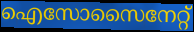
ഐസോസൈനേറ്റ്